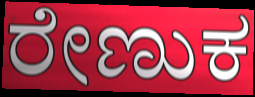
ರೇಣುಕ